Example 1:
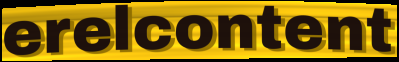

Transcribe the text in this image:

erelcontent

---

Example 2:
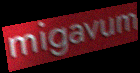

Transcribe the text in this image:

migavum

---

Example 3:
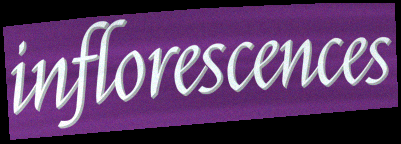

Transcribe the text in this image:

inflorescences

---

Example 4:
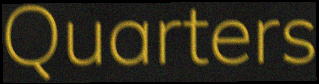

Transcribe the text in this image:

Quarters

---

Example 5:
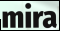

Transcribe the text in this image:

mira